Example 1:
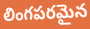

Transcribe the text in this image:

లింగపరమైన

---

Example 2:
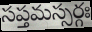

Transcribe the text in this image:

సప్తమస్సర్గః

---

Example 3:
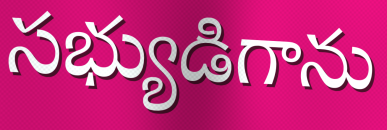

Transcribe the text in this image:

సభ్యుడిగాను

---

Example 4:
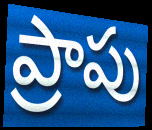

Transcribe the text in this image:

ప్రాపు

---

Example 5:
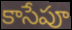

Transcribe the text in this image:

కాసేపూ